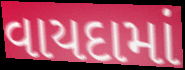
વાયદામાં